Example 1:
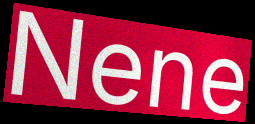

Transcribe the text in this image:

Nene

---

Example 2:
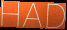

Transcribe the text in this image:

HAD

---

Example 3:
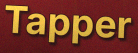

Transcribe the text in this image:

Tapper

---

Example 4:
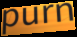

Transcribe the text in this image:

purn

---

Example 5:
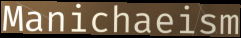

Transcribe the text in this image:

Manichaeism